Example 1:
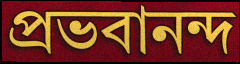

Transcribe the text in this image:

প্রভবানন্দ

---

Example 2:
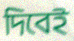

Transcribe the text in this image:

দিবেই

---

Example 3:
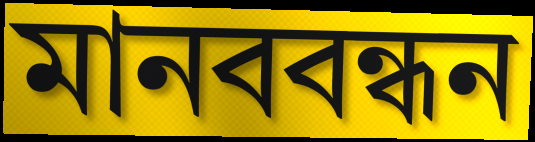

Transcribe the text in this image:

মানববন্ধন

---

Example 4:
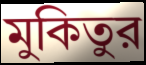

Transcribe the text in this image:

মুকিতুর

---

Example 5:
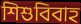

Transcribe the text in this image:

শিশুবিবাহ